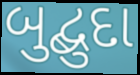
બુદ્બુદા